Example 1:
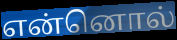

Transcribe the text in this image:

என்னொல்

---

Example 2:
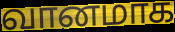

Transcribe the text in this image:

வானமாக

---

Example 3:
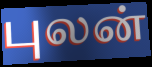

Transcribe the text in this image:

புலன்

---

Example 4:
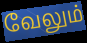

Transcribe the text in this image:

வேலும்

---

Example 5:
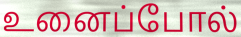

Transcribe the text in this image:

உனைப்போல்